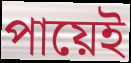
পায়েই